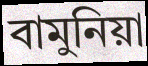
বামুনিয়া